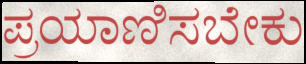
ಪ್ರಯಾಣಿಸಬೇಕು